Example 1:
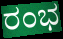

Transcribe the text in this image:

ರಂಭ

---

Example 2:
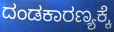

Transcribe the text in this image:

ದಂಡಕಾರಣ್ಯಕ್ಕೆ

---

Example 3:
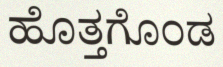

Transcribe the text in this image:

ಹೊತ್ತಗೊಂಡ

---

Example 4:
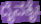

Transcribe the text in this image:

ದೈವತೈಃ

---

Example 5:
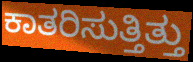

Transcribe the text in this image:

ಕಾತರಿಸುತ್ತಿತ್ತು